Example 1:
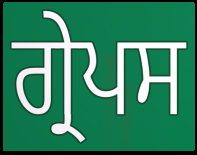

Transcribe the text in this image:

ਗ੍ਰੇਪਸ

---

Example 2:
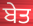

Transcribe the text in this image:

ਬੇਤ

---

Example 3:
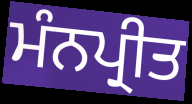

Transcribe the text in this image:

ਮੰਨਪ੍ਰੀਤ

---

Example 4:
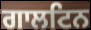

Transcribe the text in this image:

ਗਾਲਟਿਨ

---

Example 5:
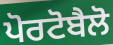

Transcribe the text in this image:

ਪੋਰਟੋਬੈਲੋ